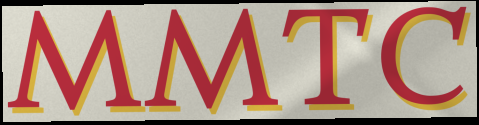
MMTC